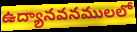
ఉద్యానవనములలో